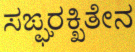
ಸಙ್ಘರಕ್ಖಿತೇನ